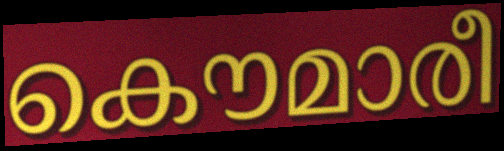
കൌമാരീ